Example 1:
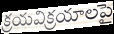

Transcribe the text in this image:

క్రయవిక్రయాలపై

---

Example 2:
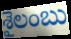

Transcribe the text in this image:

శైలంబు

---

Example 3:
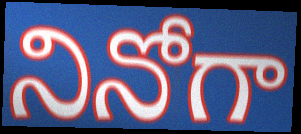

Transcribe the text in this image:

నినోగా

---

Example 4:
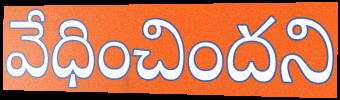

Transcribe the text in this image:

వేధించిందని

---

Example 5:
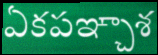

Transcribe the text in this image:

ఏకపఞ్చాశ